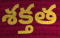
శక్తత